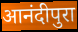
आनंदीपुरा